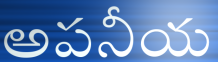
అపనీయ